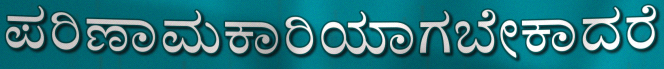
ಪರಿಣಾಮಕಾರಿಯಾಗಬೇಕಾದರೆ